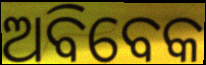
ଅବିବେକ